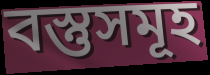
বস্তুসমূহ